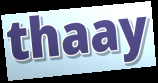
thaay